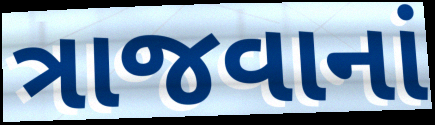
ત્રાજવાનાં